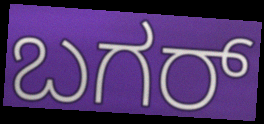
ಬಗರ್